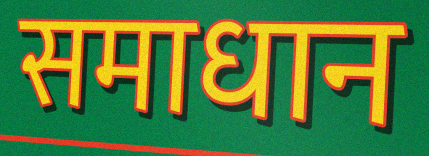
समाधान